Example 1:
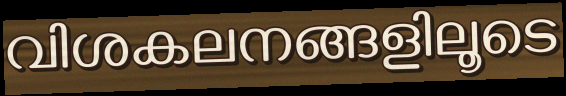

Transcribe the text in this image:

വിശകലനങ്ങളിലൂടെ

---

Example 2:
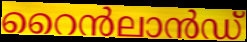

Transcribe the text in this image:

റൈൻലാൻഡ്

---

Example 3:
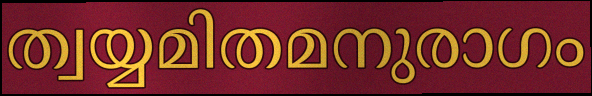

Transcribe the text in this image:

ത്വയ്യമിതമനുരാഗം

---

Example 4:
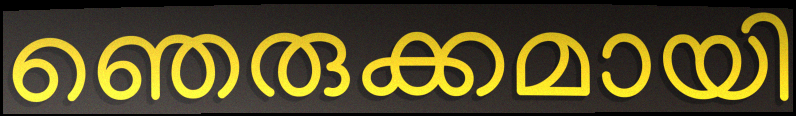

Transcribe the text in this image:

ഞെരുക്കമായി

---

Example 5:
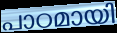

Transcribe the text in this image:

പാഠമായി